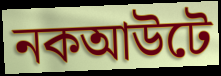
নকআউটে